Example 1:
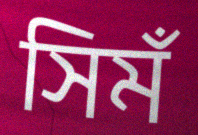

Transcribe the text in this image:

সিমঁ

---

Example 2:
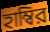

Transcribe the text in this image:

হাম্বির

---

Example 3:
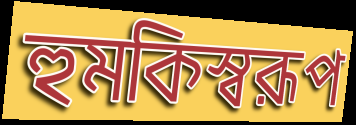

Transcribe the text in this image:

হুমকিস্বরূপ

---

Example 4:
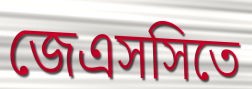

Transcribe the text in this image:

জেএসসিতে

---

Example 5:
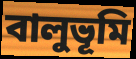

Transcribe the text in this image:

বালুভূমি